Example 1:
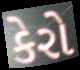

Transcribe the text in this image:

કેરો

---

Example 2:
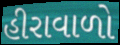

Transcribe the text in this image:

હીરાવાળો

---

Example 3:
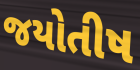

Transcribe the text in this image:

જયોતીષ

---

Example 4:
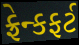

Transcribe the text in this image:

ફ્રેન્કફર્ટ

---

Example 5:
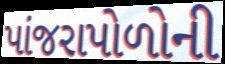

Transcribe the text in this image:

પાંજરાપોળોની